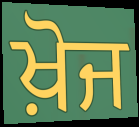
ਖ਼ੋਜ